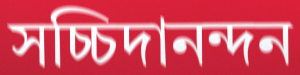
সচ্চিদানন্দন